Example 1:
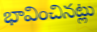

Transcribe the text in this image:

భావించినట్లు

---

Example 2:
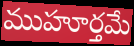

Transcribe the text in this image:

ముహూర్తమే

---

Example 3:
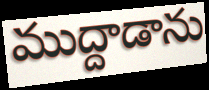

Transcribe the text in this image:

ముద్దాడాను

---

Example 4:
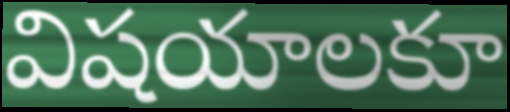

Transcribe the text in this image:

విషయాలకూ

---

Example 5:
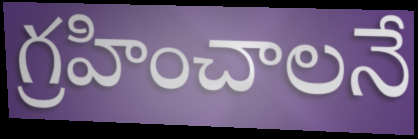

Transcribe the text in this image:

గ్రహించాలనే